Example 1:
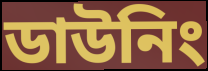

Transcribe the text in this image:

ডাউনিং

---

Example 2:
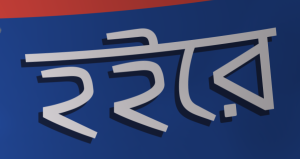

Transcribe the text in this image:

হইরে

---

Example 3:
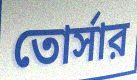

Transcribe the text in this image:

তোর্সার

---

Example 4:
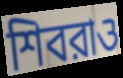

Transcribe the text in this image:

শিবরাও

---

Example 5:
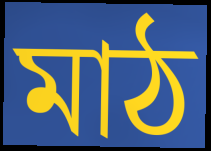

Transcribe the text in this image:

মাঠ